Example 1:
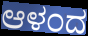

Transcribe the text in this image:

ಆಳಂದ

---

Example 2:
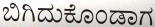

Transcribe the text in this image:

ಬಿಗಿದುಕೊಂಡಾಗ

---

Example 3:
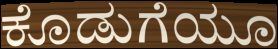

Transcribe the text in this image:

ಕೊಡುಗೆಯೂ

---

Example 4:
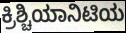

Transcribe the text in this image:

ಕ್ರಿಶ್ಚಿಯಾನಿಟಿಯ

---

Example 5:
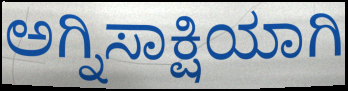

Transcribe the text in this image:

ಅಗ್ನಿಸಾಕ್ಷಿಯಾಗಿ